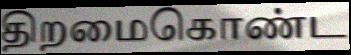
திறமைகொண்ட